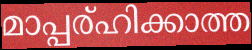
മാപ്പര്ഹിക്കാത്ത